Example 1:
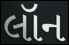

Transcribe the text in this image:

લૉન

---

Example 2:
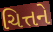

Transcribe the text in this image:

ચિત્તને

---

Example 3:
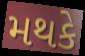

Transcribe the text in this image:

મથકે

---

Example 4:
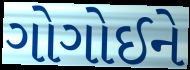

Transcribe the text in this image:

ગોગોઈને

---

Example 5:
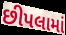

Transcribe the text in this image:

છીપલામાં